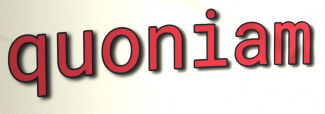
quoniam